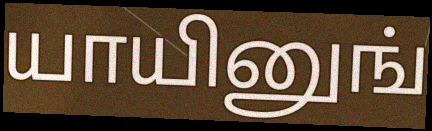
யாயினுங்